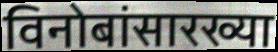
विनोबांसारख्या